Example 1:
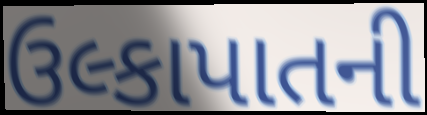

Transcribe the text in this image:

ઉલ્કાપાતની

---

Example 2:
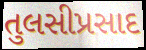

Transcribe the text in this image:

તુલસીપ્રસાદ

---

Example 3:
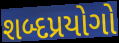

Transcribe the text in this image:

શબ્દપ્રયોગો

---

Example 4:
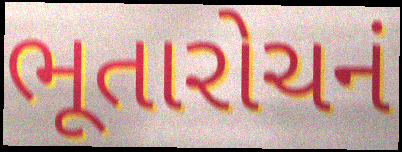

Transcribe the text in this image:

ભૂતારોચનં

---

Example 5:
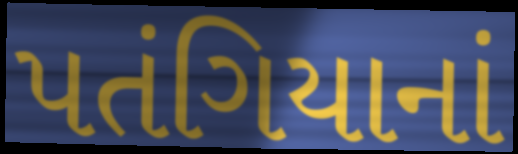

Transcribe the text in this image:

પતંગિયાનાં